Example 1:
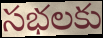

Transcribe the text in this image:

సభలకు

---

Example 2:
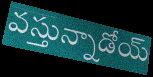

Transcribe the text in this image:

వస్తున్నాడోయ్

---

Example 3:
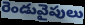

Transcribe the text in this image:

రెండువైపులు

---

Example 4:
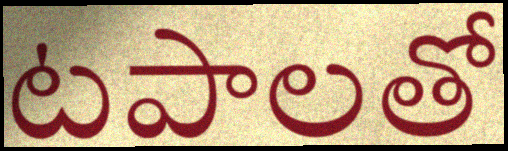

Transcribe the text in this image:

టపాలతో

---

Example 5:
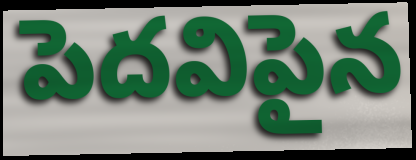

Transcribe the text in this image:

పెదవిపైన